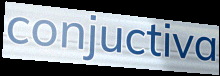
conjuctiva